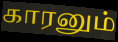
காரனும்